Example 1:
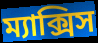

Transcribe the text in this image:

ম্যাক্সিস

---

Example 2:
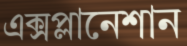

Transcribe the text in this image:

এক্সপ্লানেশান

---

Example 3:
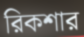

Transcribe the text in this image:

রিকশার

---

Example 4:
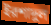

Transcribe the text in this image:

ইরশাদুল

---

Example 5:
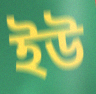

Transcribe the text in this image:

ইউ